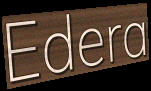
Edera